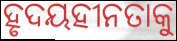
ହୃଦୟହୀନତାକୁ